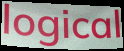
logical